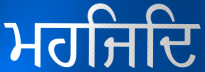
ਮਹਜਿਦਿ